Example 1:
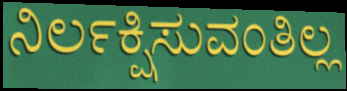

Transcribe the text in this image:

ನಿರ್ಲಕ್ಷಿಸುವಂತಿಲ್ಲ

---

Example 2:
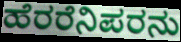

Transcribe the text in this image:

ಹೆರರೆನಿಪರನು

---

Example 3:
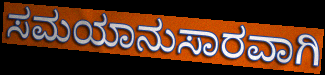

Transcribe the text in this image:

ಸಮಯಾನುಸಾರವಾಗಿ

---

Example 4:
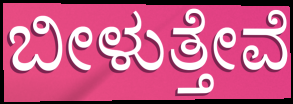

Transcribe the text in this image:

ಬೀಳುತ್ತೇವೆ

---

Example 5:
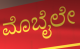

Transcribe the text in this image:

ಮೊಬೈಲೇ